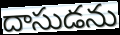
దాసుడను